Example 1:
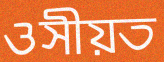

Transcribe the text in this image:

ওসীয়ত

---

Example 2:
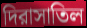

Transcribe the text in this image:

দিরাসাতিল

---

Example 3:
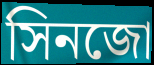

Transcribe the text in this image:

সিনজো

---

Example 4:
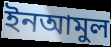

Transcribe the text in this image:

ইনআমুল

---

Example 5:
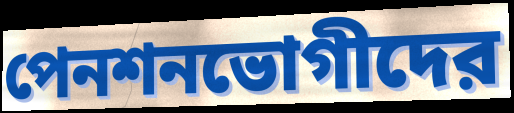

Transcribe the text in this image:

পেনশনভোগীদের